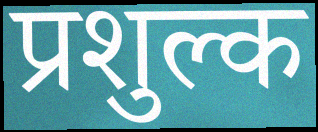
प्रशुल्क